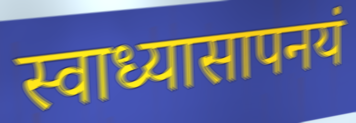
स्वाध्यासापनयं